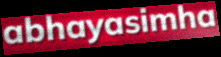
abhayasimha